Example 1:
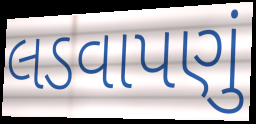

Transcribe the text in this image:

લડવાપણું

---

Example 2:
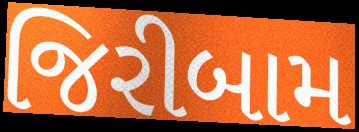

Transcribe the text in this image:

જિરીબામ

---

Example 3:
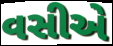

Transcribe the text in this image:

વસીએ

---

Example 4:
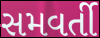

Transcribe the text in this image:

સમવર્તી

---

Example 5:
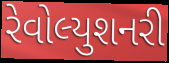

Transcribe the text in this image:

રેવોલ્યુશનરી